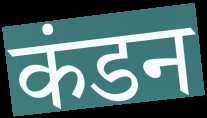
कंडन